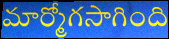
మార్మోగసాగింది